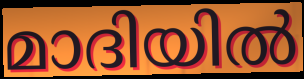
മാദിയിൽ